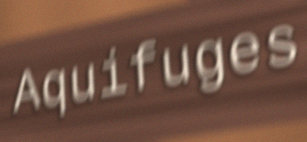
Aquifuges